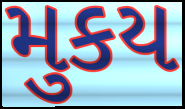
મુકય